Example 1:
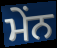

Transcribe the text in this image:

ਮੇਂਨ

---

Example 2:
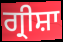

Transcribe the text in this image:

ਗ੍ਰੀਸ਼ਾ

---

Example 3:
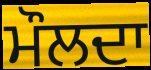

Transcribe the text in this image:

ਮੌਲਦਾ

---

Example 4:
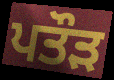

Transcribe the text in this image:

ਪਤੌੜ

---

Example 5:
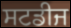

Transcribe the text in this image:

ਸਟਡੀਜ